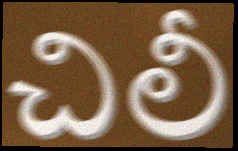
చిలీ